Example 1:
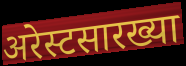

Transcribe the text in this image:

अरेस्टसारख्या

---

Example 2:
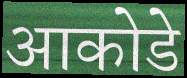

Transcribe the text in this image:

आकोडे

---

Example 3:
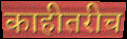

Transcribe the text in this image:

काहीतरीच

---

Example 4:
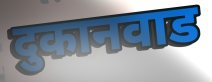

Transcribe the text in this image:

दुकानवाड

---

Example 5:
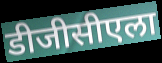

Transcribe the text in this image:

डीजीसीएला